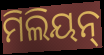
ମିଲିୟନ୍